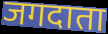
जगदाता